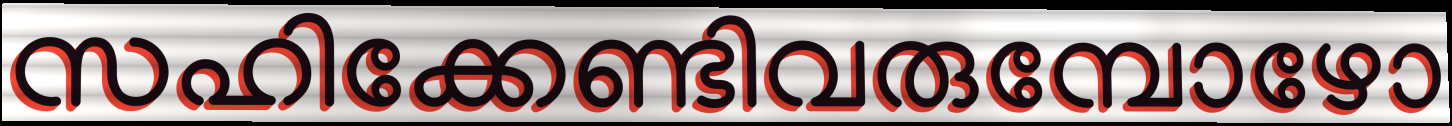
സഹിക്കേണ്ടിവരുമ്പോഴോ